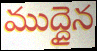
ముద్దైన